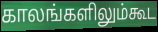
காலங்களிலும்கூட